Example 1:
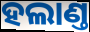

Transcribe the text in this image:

ହଲାଣ୍ତ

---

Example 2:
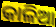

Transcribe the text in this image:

କାଳିଆ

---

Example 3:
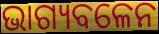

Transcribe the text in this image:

ଭାଗ୍ୟବଳେନ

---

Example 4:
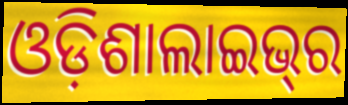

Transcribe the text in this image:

ଓଡ଼ିଶାଲାଇଭ୍‌ର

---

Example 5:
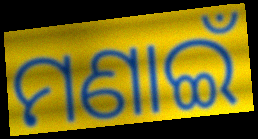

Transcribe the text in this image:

ମଣାଇଁ